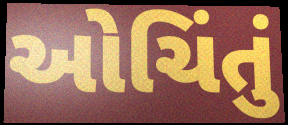
ઓચિંતું